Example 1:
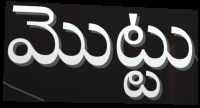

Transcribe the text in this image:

మొట్టు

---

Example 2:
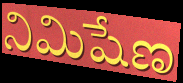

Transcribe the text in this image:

నిమిషేణ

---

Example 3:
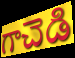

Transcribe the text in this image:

గాచెడి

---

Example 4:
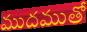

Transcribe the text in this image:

ముదముతో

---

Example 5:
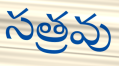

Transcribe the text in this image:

సత్రవు